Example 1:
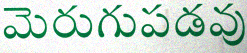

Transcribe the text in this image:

మెరుగుపడవు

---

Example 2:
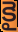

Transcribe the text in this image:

కై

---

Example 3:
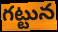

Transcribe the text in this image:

గట్టున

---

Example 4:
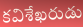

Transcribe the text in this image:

కవిశేఖరుడు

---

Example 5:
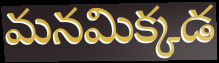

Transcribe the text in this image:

మనమిక్కడ